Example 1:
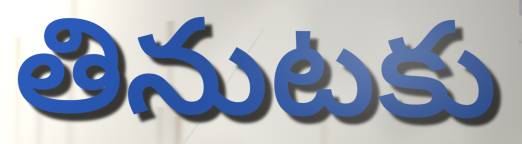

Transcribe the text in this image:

తినుటకు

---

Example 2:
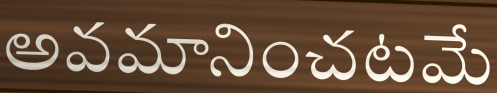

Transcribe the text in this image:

అవమానించటమే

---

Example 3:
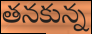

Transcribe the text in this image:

తనకున్న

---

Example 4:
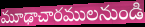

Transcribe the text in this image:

మూఢాచారములనుండి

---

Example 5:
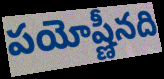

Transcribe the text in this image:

పయోష్ణీనది